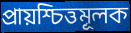
প্রায়শ্চিত্তমূলক